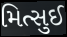
મિત્સુઈ